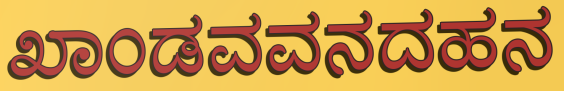
ಖಾಂಡವವನದಹನ